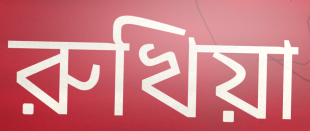
রুখিয়া